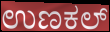
ಉಣಕಲ್